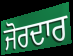
ਜੋਰਦਾਰ